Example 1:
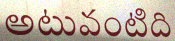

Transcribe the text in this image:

అటువంటిది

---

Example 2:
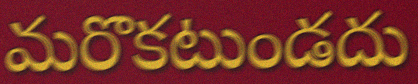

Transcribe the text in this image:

మరొకటుండదు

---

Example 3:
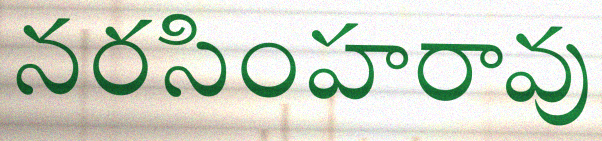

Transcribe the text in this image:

నరసింహరావు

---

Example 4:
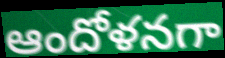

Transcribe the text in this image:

ఆందోళనగా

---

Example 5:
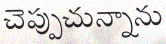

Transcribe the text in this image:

చెప్పుచున్నాను